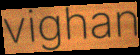
vighan